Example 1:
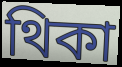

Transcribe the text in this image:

থিকা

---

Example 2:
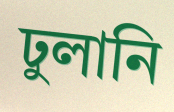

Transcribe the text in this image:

ঢুলানি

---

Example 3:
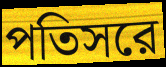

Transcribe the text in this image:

পতিসরে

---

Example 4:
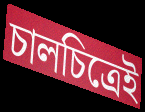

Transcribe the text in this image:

চালচিত্রেই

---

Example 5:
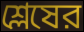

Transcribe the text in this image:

শ্লেষের